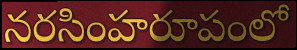
నరసింహరూపంలో